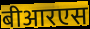
बीआरएस